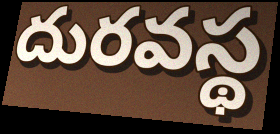
దురవస్థ